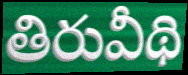
తిరువీథి